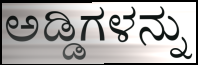
ಅಡ್ಡಿಗಳನ್ನು